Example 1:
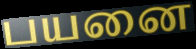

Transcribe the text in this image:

பயனை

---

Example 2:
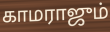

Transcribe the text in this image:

காமராஜும்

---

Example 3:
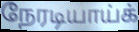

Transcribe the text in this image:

நேரடியாய்க்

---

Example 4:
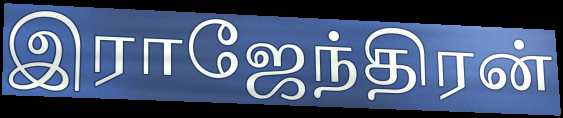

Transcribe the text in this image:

இராஜேந்திரன்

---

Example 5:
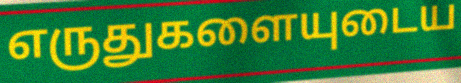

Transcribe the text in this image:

எருதுகளையுடைய